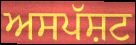
ਅਸਪੱਸ਼ਟ